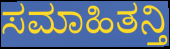
ಸಮಾಹಿತನ್ತಿ